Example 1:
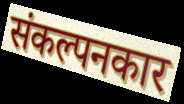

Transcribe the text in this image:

संकल्पनकार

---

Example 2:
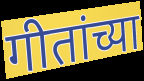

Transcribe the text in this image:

गीतांच्या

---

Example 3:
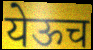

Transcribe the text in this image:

येऊच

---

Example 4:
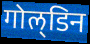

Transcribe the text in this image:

गोल्डिन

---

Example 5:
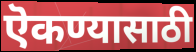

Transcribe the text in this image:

ऎकण्यासाठी